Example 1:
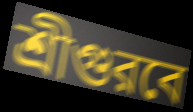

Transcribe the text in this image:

শ্রীগুরবে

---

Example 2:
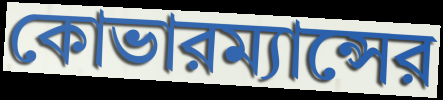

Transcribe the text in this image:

কোভারম্যান্সের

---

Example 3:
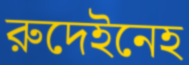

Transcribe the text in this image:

রুদেইনেহ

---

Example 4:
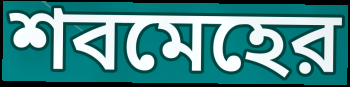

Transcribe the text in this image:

শবমেহের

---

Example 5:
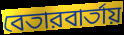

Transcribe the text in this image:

বেতারবার্তায়